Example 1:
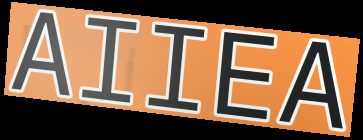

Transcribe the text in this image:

AIIEA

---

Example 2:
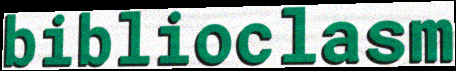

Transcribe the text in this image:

biblioclasm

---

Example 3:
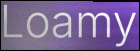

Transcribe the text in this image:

Loamy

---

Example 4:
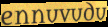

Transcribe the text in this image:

ennuvudu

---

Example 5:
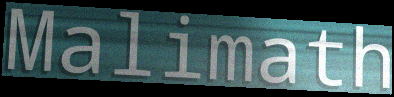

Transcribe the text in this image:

Malimath